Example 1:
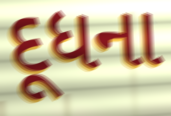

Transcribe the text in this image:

દૂધના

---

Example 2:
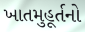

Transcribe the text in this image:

ખાતમુહૂર્તનો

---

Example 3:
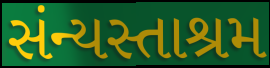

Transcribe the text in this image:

સંન્યસ્તાશ્રમ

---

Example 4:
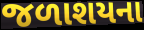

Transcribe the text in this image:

જળાશયના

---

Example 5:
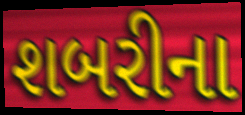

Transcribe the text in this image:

શબરીના